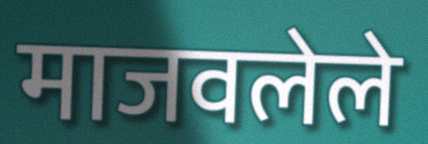
माजवलेले